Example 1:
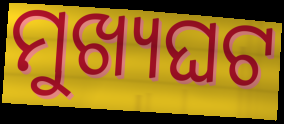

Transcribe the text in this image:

ମୁଖ୍ୟଘଟ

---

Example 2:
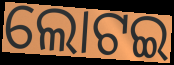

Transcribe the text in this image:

ଲୋଟଇ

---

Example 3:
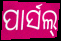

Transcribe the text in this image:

ପାର୍ସଲ୍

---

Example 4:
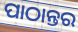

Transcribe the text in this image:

ପାଠାନ୍ତର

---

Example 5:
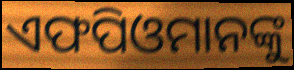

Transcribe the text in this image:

ଏଫପିଓମାନଙ୍କୁ